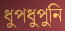
ধুপধুপুনি